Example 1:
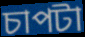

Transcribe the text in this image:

চাপটা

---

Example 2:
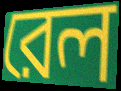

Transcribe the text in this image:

রেল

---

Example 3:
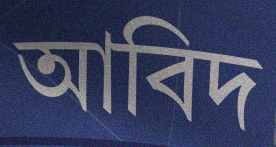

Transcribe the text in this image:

আবিদ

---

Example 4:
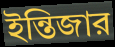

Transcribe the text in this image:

ইন্তিজার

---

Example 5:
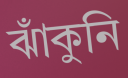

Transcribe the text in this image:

ঝাঁকুনি